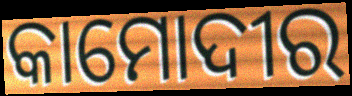
କାମୋଦୀର